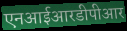
एनआईआरडीपीआर